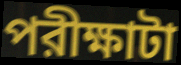
পরীক্ষাটা